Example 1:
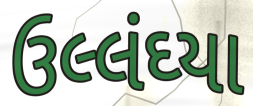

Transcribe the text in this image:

ઉલ્લંઘ્યા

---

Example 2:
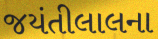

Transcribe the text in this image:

જયંતીલાલના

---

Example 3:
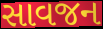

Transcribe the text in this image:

સાવજન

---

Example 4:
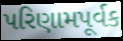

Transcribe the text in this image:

પરિણામપૂર્વક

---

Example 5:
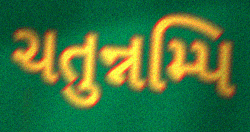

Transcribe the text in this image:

ચતુન્નમ્પિ